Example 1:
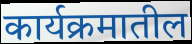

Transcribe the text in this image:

कार्यक्रमातील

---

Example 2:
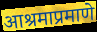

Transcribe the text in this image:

आश्रमाप्रमाणे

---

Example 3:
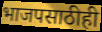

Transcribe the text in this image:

भाजपसाठीही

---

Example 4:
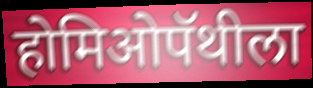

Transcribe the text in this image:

होमिओपॅथीला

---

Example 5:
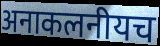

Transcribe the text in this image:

अनाकलनीयच